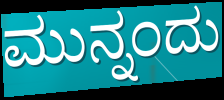
ಮುನ್ನಂದು